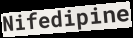
Nifedipine